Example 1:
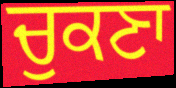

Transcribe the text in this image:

ਚੁਕਣਾ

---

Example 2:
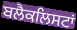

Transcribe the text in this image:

ਬਲੈਕਲਿਸਟਾਂ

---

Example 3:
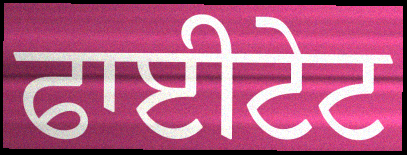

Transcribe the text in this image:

ਫਾਈਟੇਟ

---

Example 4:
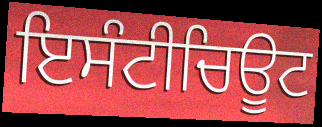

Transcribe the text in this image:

ਇਸੰਟੀਚਿਊਟ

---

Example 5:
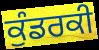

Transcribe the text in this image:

ਕੁੰਡਰਕੀ